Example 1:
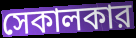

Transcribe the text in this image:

সেকালকার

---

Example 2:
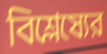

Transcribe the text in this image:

বিশ্লেষ্যের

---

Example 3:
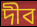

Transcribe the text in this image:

দীব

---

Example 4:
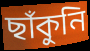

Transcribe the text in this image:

ছাঁকুনি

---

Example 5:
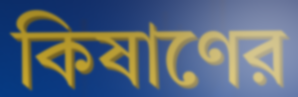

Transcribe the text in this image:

কিষাণের